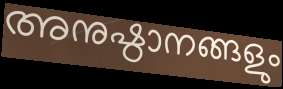
അനുഷ്ഠാനങ്ങളും